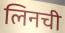
लिनची